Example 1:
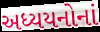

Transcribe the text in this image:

અધ્યયનોનાં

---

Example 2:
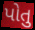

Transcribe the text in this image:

પોતુ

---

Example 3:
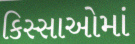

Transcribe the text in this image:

કિસ્સાઓમાં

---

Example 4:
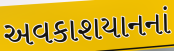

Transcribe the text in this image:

અવકાશયાનનાં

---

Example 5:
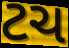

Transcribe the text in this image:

ટચ